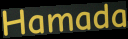
Hamada